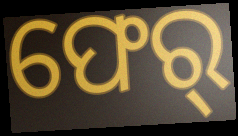
ଫେର୍